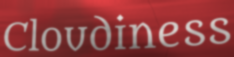
Cloudiness